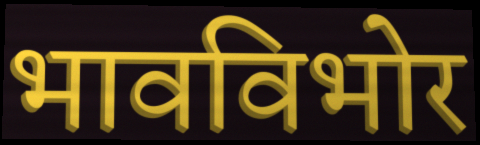
भावविभोर